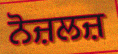
ਨੋਜ਼ਲਜ਼